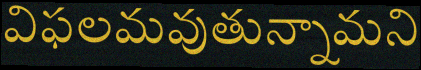
విఫలమవుతున్నామని